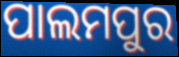
ପାଲମପୁର